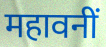
महावनीं